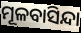
ମୂଳବାସିନ୍ଦା